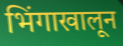
भिंगाखालून